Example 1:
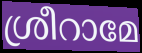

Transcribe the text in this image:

ശ്രീറാമേ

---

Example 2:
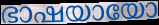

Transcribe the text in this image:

ഭാഷയായോ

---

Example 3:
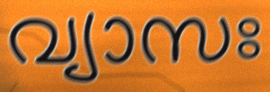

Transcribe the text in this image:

വ്യാസഃ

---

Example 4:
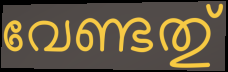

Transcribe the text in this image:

വേണ്ടതു്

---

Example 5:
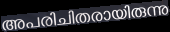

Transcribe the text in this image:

അപരിചിതരായിരുന്നു